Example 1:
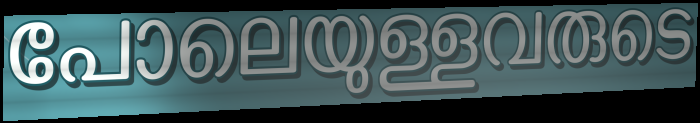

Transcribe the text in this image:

പോലെയുള്ളവരുടെ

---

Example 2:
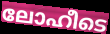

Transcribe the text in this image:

ലോഹീടെ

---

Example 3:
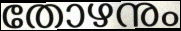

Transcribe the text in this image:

തോഴനും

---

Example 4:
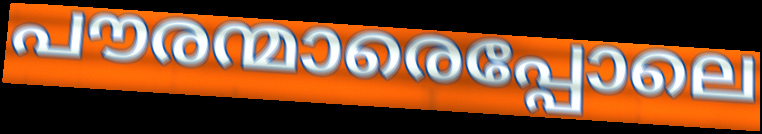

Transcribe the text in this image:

പൗരന്മാരെപ്പോലെ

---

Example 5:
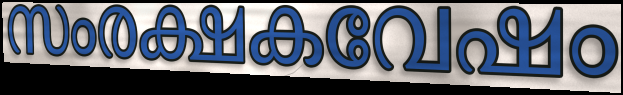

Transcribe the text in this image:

സംരക്ഷകവേഷം